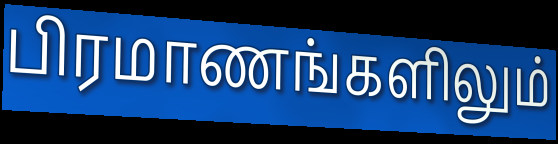
பிரமாணங்களிலும்